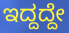
ಇದ್ದದ್ದೇ